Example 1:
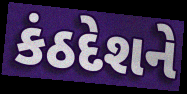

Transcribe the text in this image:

કંઠદેશને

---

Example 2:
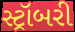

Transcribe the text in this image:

સ્ટ્રૉબરી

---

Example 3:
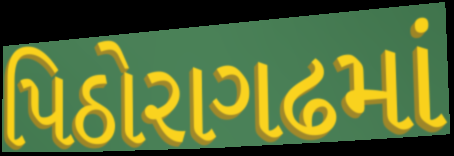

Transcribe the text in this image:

પિઠોરાગઢમાં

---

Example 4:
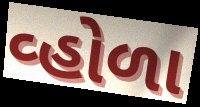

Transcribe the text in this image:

વ્હોળા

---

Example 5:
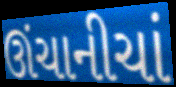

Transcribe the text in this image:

ઊંચાનીચાં